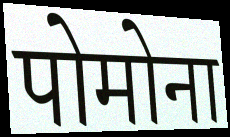
पोमोना